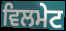
ਵਿਲਮੇਟ